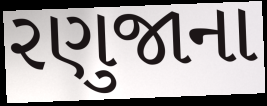
રણુજાના